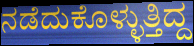
ನಡೆದುಕೊಳ್ಳುತ್ತಿದ್ದ